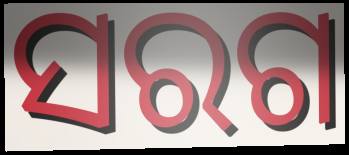
ସରଗ